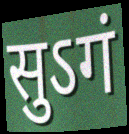
सुऽगं